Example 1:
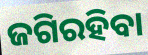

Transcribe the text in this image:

ଜଗିରହିବା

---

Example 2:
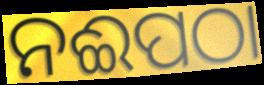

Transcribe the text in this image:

ନଈପଠା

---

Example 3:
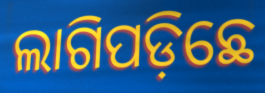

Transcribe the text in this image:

ଲାଗିପଡ଼ିଛେ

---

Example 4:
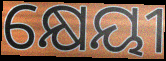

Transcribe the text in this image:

କ୍ଷେୟୀ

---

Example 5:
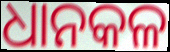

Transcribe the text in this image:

ଧାନକଳ